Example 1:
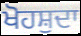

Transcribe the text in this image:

ਖੋਹਸ਼ੁਦਾ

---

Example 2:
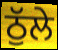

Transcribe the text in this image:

ਠੁੱਲੇ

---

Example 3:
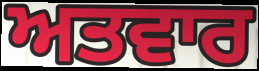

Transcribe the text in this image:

ਅਤਵਾਰ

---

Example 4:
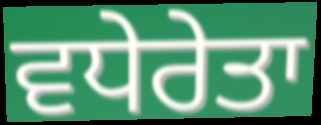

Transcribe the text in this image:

ਵਧੇਰੇਤਾ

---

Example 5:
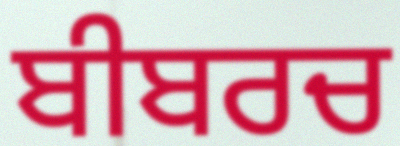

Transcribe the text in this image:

ਬੀਬਰਚ